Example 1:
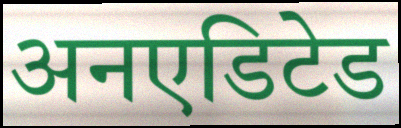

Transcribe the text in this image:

अनएडिटेड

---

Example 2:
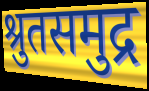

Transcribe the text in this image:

श्रुतसमुद्र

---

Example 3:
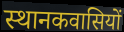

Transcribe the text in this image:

स्थानकवासियों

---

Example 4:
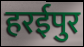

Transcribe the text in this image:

हरईपुर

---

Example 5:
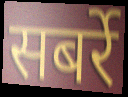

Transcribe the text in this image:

सबर्रे